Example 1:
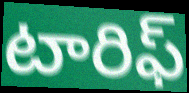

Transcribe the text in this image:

టారిఫ్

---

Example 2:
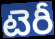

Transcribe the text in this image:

టెరీ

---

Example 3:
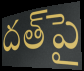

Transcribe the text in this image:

దత్‌పై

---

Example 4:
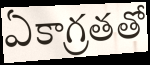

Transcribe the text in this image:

ఏకాగ్రతతో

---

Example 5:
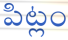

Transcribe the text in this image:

పిట్లం